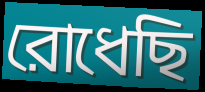
রোধেছি